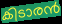
കിടാരൻ